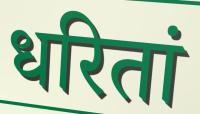
धरितां